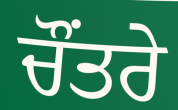
ਚੌਂਤਰੇ